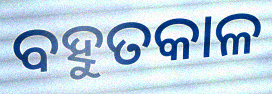
ବହୁତକାଳ